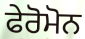
ਫੇਰੋਮੋਨ